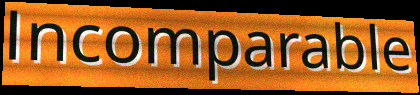
Incomparable